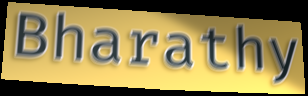
Bharathy